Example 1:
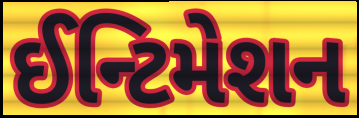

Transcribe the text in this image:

ઈન્ટિમેશન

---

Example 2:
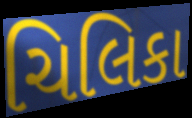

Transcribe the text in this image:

ચિલિકા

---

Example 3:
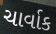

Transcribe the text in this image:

ચાર્વાક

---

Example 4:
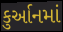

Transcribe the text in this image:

કુર્આનમાં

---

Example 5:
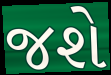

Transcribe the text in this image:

જશે